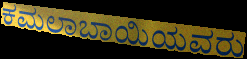
ಕಮಲಾಬಾಯಿಯವರು